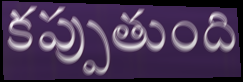
కప్పుతుంది